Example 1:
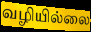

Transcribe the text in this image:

வழியில்லை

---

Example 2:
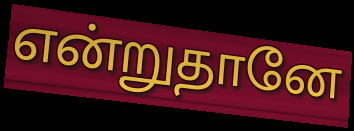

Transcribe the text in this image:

என்றுதானே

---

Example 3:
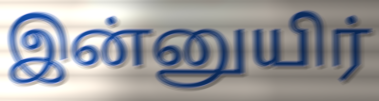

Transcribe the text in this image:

இன்னுயிர்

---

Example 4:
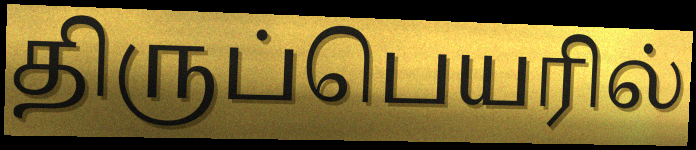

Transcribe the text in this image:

திருப்பெயரில்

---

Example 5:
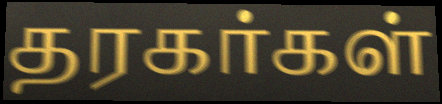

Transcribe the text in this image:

தரகர்கள்